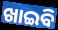
ଖାଇବି